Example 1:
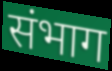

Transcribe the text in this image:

संभाग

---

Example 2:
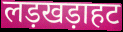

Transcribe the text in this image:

लड़खड़ाहट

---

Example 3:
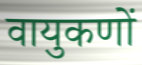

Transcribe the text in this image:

वायुकणों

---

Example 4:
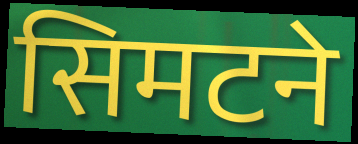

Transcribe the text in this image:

सिमटने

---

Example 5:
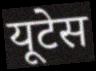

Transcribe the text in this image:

यूटेस